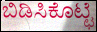
ಬಿಡಿಸಿಕೊಟ್ಟೆ